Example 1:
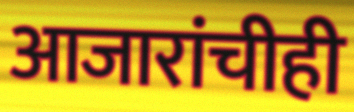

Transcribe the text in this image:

आजारांचीही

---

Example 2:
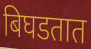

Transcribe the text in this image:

बिघडतात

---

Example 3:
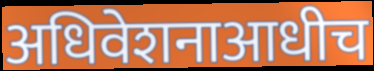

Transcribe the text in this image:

अधिवेशनाआधीच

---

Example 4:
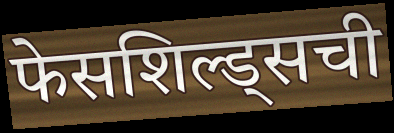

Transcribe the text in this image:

फेसशिल्ड्सची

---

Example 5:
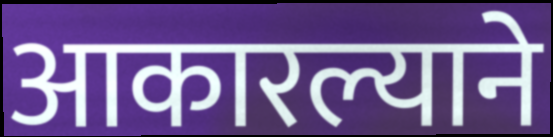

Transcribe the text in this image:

आकारल्याने